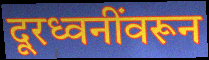
दूरध्वनींवरून